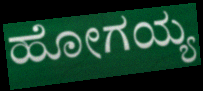
ಹೋಗಯ್ಯ